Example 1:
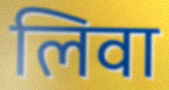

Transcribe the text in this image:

लिवा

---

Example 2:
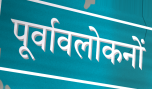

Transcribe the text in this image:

पूर्वावलोकनों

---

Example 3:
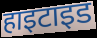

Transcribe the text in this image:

हाइटाइड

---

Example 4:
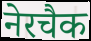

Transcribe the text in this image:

नेरचैक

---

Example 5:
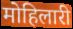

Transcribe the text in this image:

मोहिलारी